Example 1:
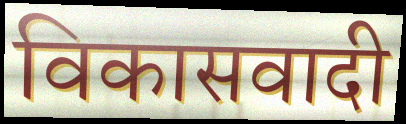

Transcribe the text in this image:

विकासवादी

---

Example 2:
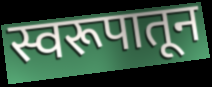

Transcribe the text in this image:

स्वरूपातून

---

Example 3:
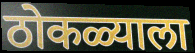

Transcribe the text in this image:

ठोकळ्याला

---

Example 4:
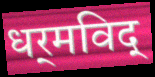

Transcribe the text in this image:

धर्मविद्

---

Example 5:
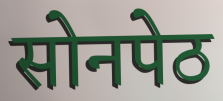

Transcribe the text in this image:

सोनपेठ